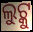
ଲୁଟ୍କୁ